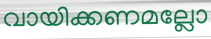
വായിക്കണമല്ലോ